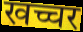
खच्चर